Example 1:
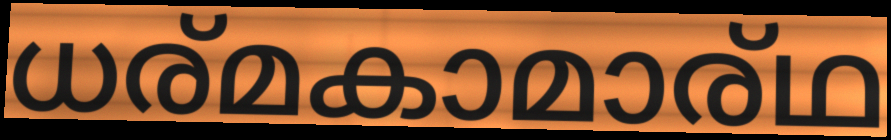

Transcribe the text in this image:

ധര്മകാമാര്ഥ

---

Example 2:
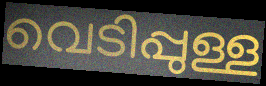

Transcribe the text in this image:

വെടിപ്പുള്ള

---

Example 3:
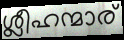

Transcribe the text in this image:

ശ്ലീഹന്മാര്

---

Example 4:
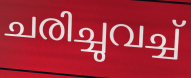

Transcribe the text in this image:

ചരിച്ചുവച്ച്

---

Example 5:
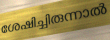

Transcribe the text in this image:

ശേഷിച്ചിരുന്നാൽ